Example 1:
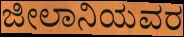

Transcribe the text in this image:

ಜೀಲಾನಿಯವರ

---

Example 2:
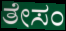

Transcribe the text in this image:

ತೇಸಂ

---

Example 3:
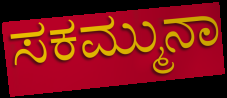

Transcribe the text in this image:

ಸಕಮ್ಮುನಾ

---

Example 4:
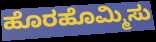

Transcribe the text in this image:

ಹೊರಹೊಮ್ಮಿಸು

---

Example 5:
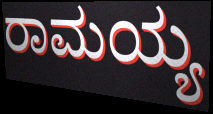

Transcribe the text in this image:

ರಾಮಯ್ಯ